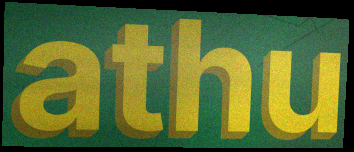
athu